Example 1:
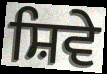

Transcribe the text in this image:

ਸ਼ਿਵੇ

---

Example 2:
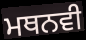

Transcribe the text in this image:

ਮਥਨਵੀ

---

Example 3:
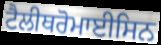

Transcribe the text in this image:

ਟੈਲੀਥਰੋਮਾਈਸਿਨ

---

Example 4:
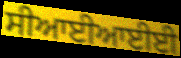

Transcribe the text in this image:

ਸੀਆਈਆਈਈ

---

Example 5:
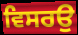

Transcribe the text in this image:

ਵਿਸਰਉ